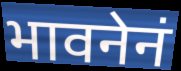
भावनेनं